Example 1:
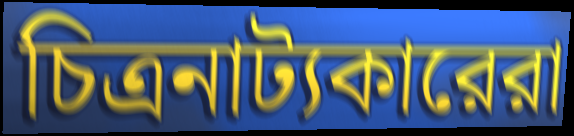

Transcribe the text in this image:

চিত্রনাট্যকারেরা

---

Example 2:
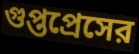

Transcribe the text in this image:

গুপ্তপ্রেসের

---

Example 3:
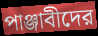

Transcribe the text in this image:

পাঞ্জাবীদের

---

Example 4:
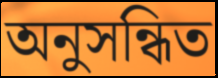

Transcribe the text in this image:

অনুসন্ধিত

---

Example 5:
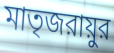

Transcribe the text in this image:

মাতৃজরায়ুর